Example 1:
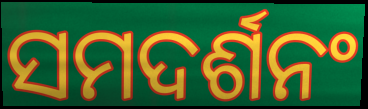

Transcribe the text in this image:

ସମଦର୍ଶନଂ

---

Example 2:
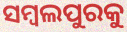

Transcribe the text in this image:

ସମ୍ୱଲପୁରକୁ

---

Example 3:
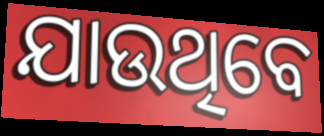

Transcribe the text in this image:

ଯାଉଥିବେ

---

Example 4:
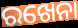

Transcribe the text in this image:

ରଖେନା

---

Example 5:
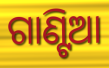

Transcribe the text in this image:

ଗାଣ୍ଟିଆ